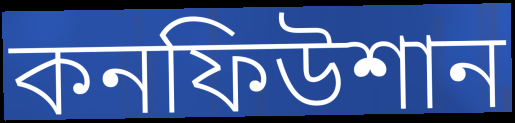
কনফিউশান